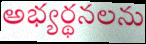
అభ్యర్థనలను